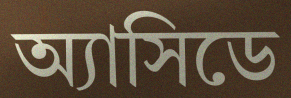
অ্যাসিডে